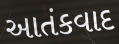
આતંકવાદ